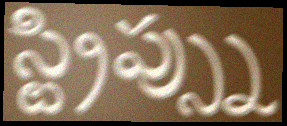
స్ట్రిప్స్ను